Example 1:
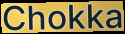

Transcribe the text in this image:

Chokka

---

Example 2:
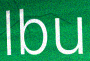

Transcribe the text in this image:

Ibu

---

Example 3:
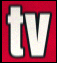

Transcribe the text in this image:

tv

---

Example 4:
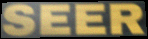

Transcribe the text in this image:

SEER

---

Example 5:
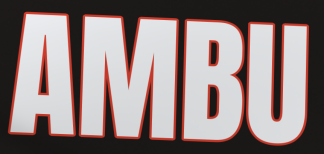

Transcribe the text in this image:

AMBU